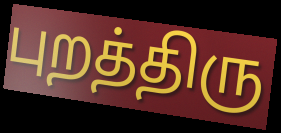
புறத்திரு